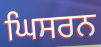
ਘਿਸਰਨ